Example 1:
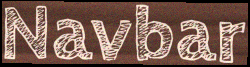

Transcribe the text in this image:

Navbar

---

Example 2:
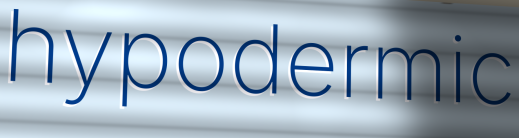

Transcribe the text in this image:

hypodermic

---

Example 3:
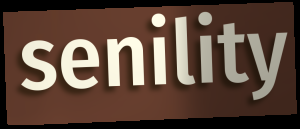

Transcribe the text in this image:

senility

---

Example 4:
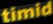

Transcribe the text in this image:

timid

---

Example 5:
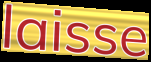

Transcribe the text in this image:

laisse